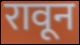
रावून